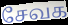
சேவக